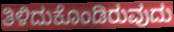
ತಿಳಿದುಕೊಂಡಿರುವುದು